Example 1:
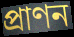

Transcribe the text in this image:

প্রাণন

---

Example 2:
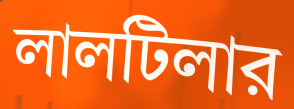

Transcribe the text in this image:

লালটিলার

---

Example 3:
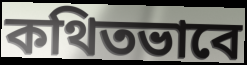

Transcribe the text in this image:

কথিতভাবে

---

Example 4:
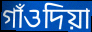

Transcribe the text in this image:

গাঁওদিয়া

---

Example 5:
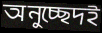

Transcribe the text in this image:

অনুচ্ছেদই